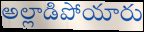
అల్లాడిపోయారు